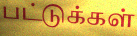
பட்டுக்கள்